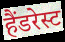
हैंडरेस्ट